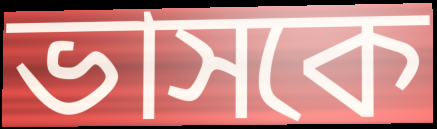
ভাসকে